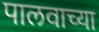
पालवाच्या